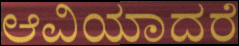
ಆವಿಯಾದರೆ